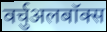
वर्चुअलबॉक्स